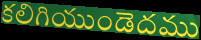
కలిగియుండెదము